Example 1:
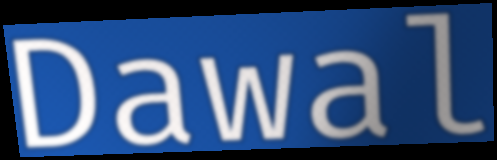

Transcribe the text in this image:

Dawal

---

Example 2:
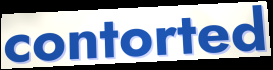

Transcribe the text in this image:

contorted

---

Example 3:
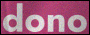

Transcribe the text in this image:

dono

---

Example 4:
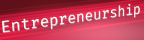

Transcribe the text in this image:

Entrepreneurship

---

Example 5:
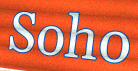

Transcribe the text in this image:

Soho